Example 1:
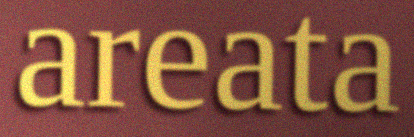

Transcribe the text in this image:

areata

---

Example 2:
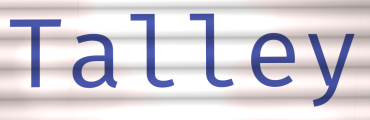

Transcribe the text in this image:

Talley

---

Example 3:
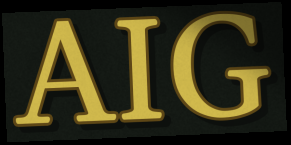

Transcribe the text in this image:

AIG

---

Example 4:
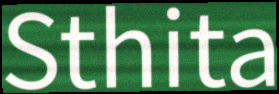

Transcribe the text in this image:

Sthita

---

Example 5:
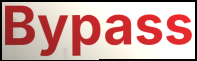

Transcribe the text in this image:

Bypass